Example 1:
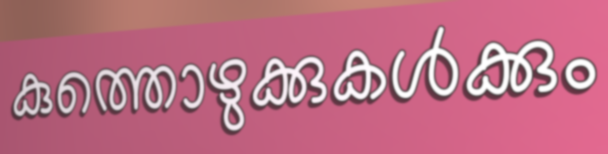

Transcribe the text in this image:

കുത്തൊഴുക്കുകൾക്കും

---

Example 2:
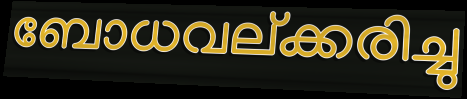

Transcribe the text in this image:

ബോധവല്ക്കരിച്ചു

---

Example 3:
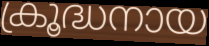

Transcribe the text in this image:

ക്രൂദ്ധനായ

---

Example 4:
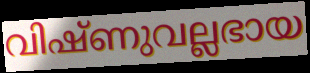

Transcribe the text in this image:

വിഷ്ണുവല്ലഭായ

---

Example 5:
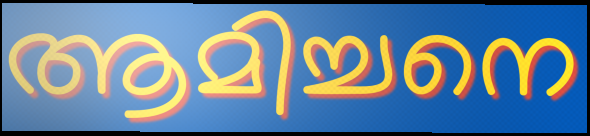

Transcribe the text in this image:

ആമിച്ചനെ